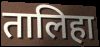
तालिहा